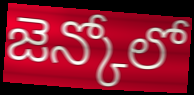
జెన్కోలో